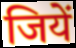
जियें